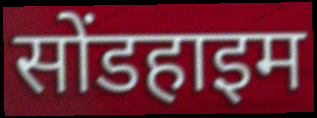
सोंडहाइम